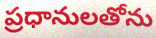
ప్రధానులతోను